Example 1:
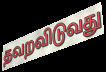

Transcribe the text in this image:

தவறவிடுவது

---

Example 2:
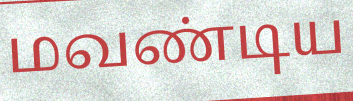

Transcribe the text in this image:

மவண்டிய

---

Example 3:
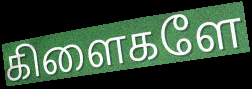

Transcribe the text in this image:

கிளைகளே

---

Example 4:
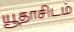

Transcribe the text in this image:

யூதாசிடம்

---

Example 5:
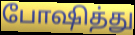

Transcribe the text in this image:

போஷித்து